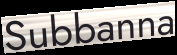
Subbanna